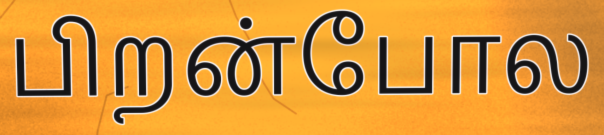
பிறன்போல